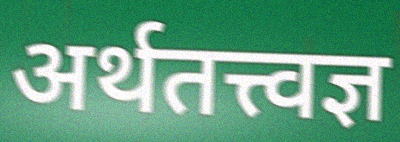
अर्थतत्त्वज्ञ